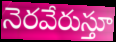
నెరవేరుస్తూ